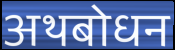
अथबोधन